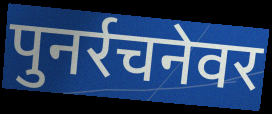
पुनर्रचनेवर